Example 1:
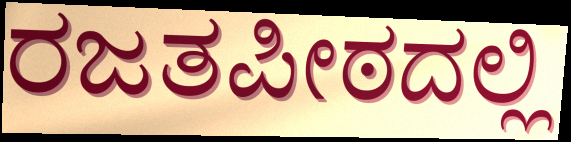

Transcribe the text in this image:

ರಜತಪೀಠದಲ್ಲಿ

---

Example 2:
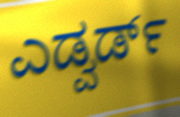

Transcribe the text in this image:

ಎಡ್ವರ್ಡ್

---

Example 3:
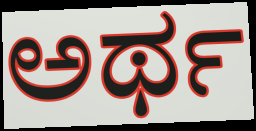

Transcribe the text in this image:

ಅರ್ಥ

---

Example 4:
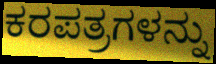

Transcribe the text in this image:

ಕರಪತ್ರಗಳನ್ನು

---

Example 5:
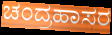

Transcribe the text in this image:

ಚಂದ್ರಹಾಸರ